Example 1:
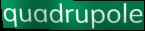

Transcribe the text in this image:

quadrupole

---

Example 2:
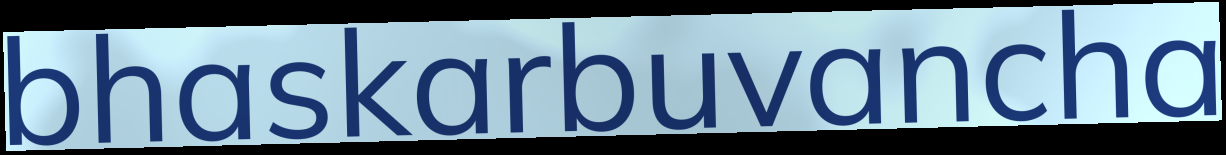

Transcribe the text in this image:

bhaskarbuvancha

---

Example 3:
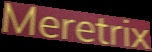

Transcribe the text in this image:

Meretrix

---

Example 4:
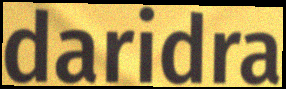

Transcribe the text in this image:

daridra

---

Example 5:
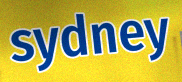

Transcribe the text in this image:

sydney